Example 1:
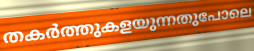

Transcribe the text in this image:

തകർത്തുകളയുന്നതുപോലെ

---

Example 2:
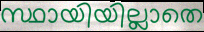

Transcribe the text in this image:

സ്ഥായിയില്ലാതെ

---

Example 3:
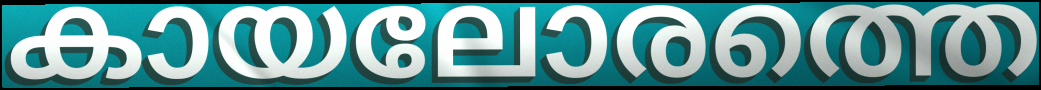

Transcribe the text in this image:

കായലോരത്തെ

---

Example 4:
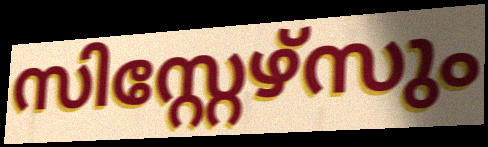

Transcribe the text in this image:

സിസ്റ്റേഴ്സും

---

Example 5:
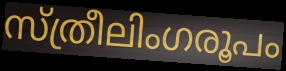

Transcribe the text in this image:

സ്ത്രീലിംഗരൂപം